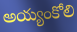
అయ్యంకోలి